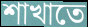
শাখাতে